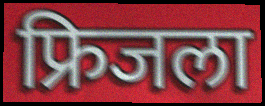
फ्रिजला